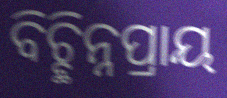
ବିଚ୍ଛିନ୍ନପ୍ରାୟ